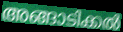
അങ്ങാടിക്കൽ